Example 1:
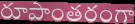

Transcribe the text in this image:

రూపాంతరంగా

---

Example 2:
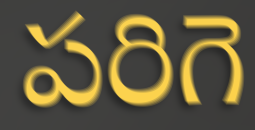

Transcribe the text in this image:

పరిగె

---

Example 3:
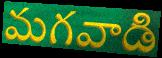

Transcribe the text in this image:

మగవాడి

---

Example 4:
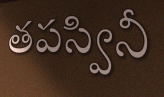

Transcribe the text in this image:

తపస్వినీ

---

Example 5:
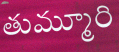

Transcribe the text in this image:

తుమ్మూరి